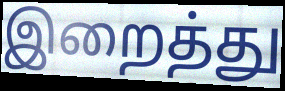
இறைத்து